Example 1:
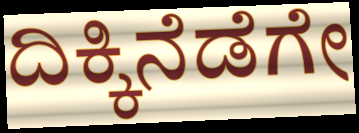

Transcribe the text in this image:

ದಿಕ್ಕಿನೆಡೆಗೇ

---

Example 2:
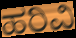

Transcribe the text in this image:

ಹರಿವಿ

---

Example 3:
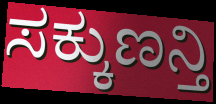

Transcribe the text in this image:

ಸಕ್ಕುಣನ್ತಿ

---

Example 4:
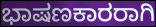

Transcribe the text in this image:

ಭಾಷಣಕಾರರಾಗಿ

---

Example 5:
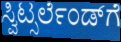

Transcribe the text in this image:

ಸ್ವಿಟ್ಸರ್ಲೆಂಡ್‌ಗೆ